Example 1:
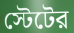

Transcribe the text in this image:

স্টেটের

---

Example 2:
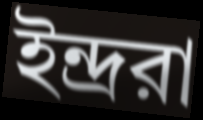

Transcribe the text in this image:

ইন্দ্ররা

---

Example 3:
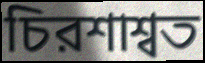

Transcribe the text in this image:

চিরশাশ্বত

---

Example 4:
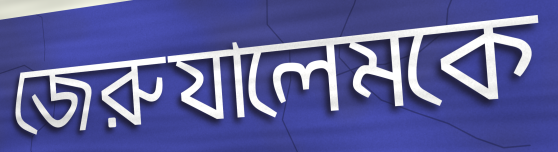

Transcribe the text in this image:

জেরুযালেমকে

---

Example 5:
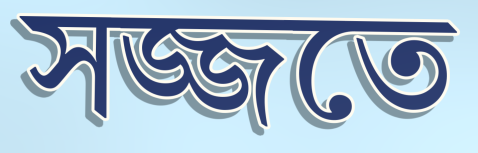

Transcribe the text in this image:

সজ্জতে